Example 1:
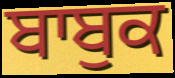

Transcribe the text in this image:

ਬਾਬੁਕ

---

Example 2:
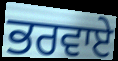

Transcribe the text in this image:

ਭਰਵਾਏ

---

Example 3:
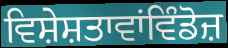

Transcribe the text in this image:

ਵਿਸ਼ੇਸ਼ਤਾਵਾਂਵਿੰਡੋਜ਼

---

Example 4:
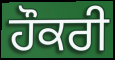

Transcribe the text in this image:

ਹੌਕਰੀ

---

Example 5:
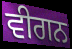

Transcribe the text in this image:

ਵੀਗਨ